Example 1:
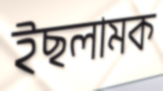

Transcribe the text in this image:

ইছলামক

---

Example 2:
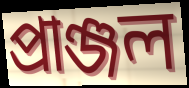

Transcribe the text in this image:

প্ৰাঞ্জল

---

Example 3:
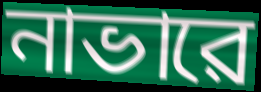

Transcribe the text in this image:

নাভাৱে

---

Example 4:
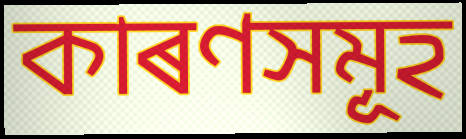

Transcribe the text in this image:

কাৰণসমূহ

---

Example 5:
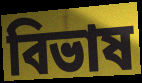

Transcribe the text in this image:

বিভাষ